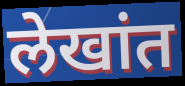
लेखांत